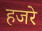
हजरे